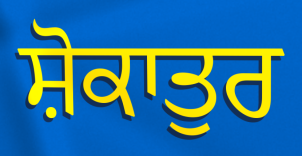
ਸ਼ੋਕਾਤੁਰ